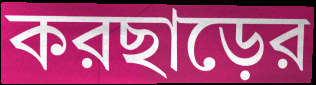
করছাড়ের